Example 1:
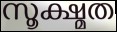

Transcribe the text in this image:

സൂക്ഷ്മത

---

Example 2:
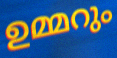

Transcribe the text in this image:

ഉമ്മറും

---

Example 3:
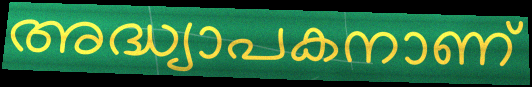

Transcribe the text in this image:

അദ്ധ്യാപകനാണ്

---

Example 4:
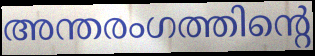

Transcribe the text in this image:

അന്തരംഗത്തിന്റെ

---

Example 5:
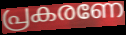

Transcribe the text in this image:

പ്രകരണേ